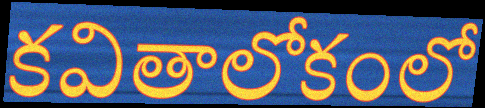
కవితాలోకంలో